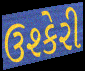
ઉશ્કેરી